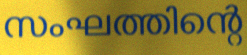
സംഘത്തിന്റെ